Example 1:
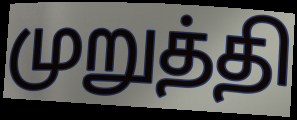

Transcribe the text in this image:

முறுத்தி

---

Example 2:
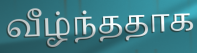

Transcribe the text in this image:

வீழ்ந்ததாக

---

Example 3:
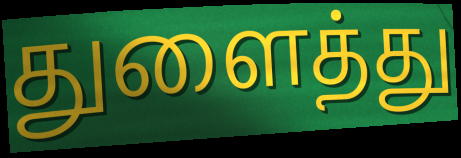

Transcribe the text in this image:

துளைத்து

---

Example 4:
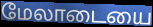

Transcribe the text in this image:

மேலாடையை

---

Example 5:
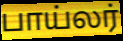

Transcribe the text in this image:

பாய்லர்